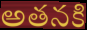
అతనకి